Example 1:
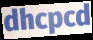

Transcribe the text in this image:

dhcpcd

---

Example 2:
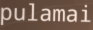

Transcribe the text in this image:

pulamai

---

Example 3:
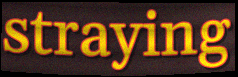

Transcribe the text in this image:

straying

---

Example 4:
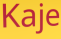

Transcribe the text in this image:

Kaje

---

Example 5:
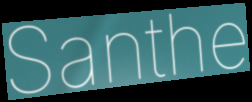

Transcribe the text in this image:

Santhe